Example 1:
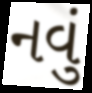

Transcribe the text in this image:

નવું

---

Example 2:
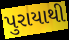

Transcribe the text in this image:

પુરાયાથી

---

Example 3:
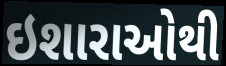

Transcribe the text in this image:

ઇશારાઓથી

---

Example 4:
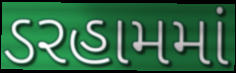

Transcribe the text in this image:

ડરહામમાં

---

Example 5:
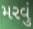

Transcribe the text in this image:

મરવું